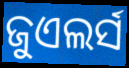
ଜୁଏଲର୍ସ